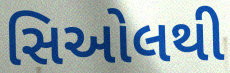
સિઓલથી